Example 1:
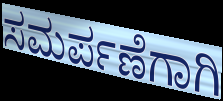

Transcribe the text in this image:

ಸಮರ್ಪಣೆಗಾಗಿ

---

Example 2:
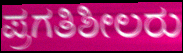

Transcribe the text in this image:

ಪ್ರಗತಿಶೀಲರು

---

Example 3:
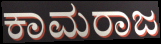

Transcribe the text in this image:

ಕಾಮರಾಜ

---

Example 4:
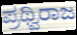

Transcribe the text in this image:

ಪ್ರಥ್ವಿರಾಜ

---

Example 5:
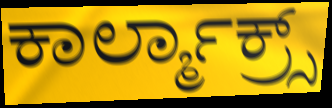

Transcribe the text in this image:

ಕಾರ್ಲ್ಮಾಕ್ರ್ಸ್